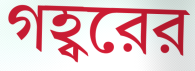
গহ্বরের